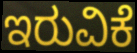
ಇರುವಿಕೆ